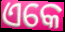
ଏକେ